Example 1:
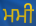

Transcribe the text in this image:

ਮਮੀ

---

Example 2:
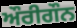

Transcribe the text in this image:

ਔਰੀਗੌਨ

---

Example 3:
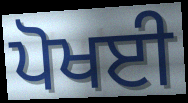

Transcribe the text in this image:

ਪੋਖਈ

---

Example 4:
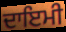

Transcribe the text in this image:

ਦਾਇਮੀ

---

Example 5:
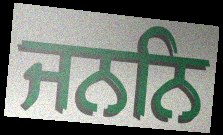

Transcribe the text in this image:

ਜਨਨਿ